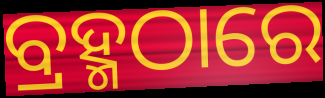
ବ୍ରହ୍ମଠାରେ